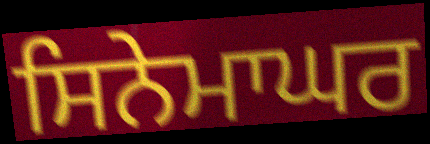
ਸਿਨੇਮਾਘਰ